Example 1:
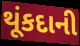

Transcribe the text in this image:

થૂંકદાની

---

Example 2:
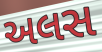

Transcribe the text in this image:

અલસ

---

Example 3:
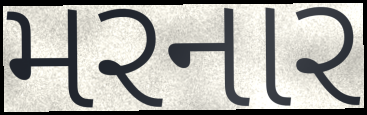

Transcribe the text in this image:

મરનાર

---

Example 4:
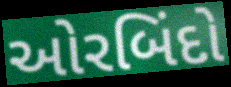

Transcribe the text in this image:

ઓરબિંદો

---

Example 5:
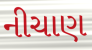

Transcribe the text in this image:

નીચાણ